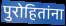
पुरोहितांना